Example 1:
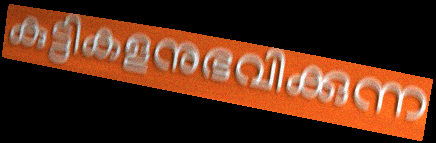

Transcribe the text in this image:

കുട്ടികളനുഭവിക്കുന്ന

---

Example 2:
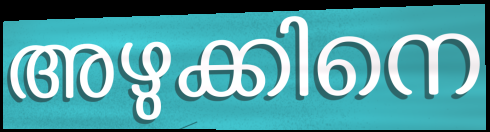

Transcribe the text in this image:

അഴുക്കിനെ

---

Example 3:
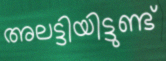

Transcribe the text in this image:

അലട്ടിയിട്ടുണ്ട്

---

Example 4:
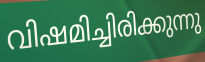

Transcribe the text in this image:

വിഷമിച്ചിരിക്കുന്നു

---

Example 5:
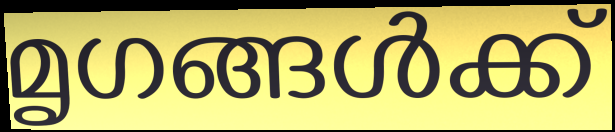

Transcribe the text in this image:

മൃഗങ്ങൾക്ക്